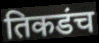
तिकडंच